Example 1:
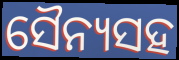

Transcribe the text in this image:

ସୈନ୍ୟସହ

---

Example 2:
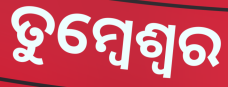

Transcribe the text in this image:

ତୁମ୍ବେଶ୍ଵର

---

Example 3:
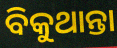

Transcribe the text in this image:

ବିକୁଥାନ୍ତା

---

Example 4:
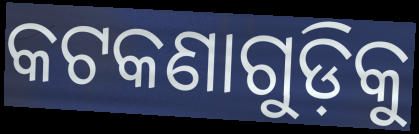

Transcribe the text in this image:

କଟକଣାଗୁଡ଼ିକୁ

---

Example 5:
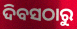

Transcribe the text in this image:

ଦିବସଠାରୁ